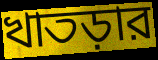
খাতড়ার